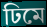
ঢিমে